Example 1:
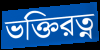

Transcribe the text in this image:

ভক্তিরত্ন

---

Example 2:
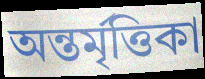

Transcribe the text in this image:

অন্তর্মৃত্তিকা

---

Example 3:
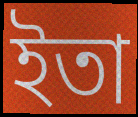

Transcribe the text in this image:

ইতা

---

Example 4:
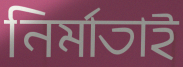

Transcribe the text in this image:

নির্মাতাই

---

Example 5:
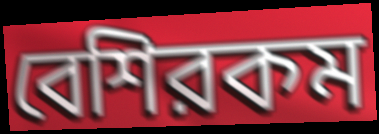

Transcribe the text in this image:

বেশিরকম